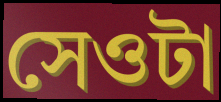
সেওটা